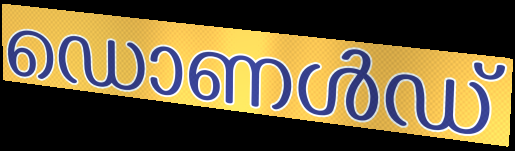
ഡൊണൾഡ്